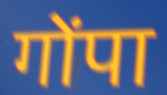
गोंपा